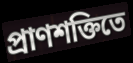
প্রাণশক্তিতে